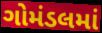
ગોમંડલમાં